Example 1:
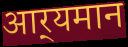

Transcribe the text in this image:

आर्यमान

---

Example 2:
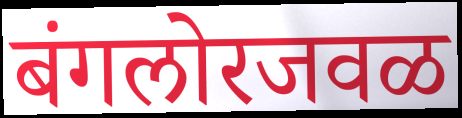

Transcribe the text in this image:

बंगलोरजवळ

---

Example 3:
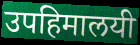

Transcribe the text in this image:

उपहिमालयी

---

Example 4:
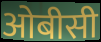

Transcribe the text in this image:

ओबीसी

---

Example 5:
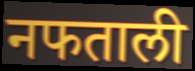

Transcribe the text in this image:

नफताली